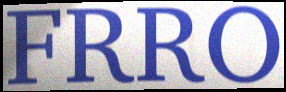
FRRO